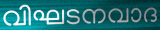
വിഘടനവാദ